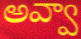
అవ్వా